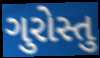
ગુરોસ્તુ